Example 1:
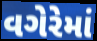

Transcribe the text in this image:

વગેરેમાં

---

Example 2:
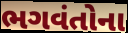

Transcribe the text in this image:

ભગવંતોના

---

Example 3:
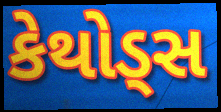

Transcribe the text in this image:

કેથોડ્સ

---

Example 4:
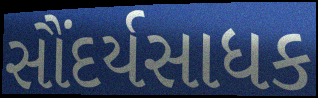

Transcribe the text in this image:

સૌંદર્યસાધક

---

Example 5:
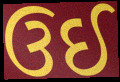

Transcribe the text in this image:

ઉઈ